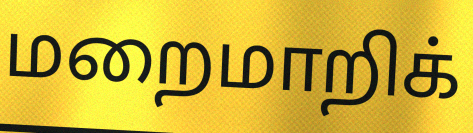
மறைமாறிக்